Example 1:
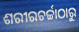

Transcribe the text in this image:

ଶରୀରଚର୍ଚ୍ଚାଠାରୁ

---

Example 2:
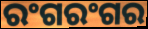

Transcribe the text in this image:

ରଂଗରଂଗର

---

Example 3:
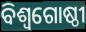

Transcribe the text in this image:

ବିଶ୍ୱଗୋଷ୍ଠୀ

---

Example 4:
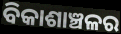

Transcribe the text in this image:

ବିକାଶାଞ୍ଚଳର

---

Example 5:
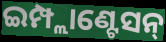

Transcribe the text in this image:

ଇମ୍ପ୍ଲାଣ୍ଟେସନ୍